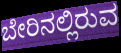
ಬೇರಿನಲ್ಲಿರುವ